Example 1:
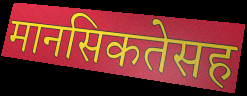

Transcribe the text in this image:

मानसिकतेसह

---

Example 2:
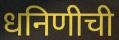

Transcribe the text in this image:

धनिणीची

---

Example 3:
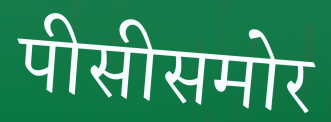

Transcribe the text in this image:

पीसीसमोर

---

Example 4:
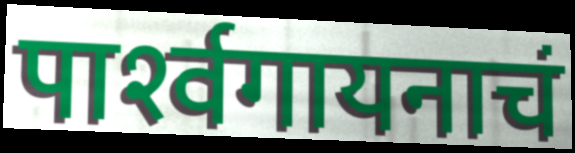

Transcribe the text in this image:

पार्श्वगायनाचं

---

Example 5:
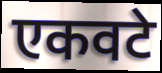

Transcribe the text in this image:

एकवटे